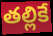
తల్లికే